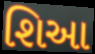
શિઆ